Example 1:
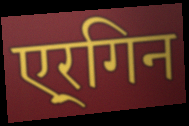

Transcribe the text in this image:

एर्गिन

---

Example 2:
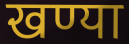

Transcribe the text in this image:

खण्या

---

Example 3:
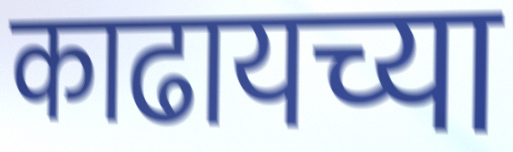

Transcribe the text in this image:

काढायच्या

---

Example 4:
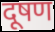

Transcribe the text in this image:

दूषण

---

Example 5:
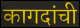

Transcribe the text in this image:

कागदांची